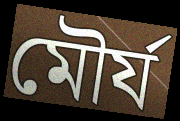
মৌৰ্য